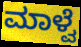
ಮಾಳ್ವೆ